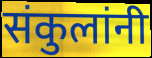
संकुलांनी